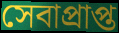
সেবাপ্রাপ্ত